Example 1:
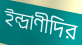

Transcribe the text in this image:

ইন্দ্রাণীদির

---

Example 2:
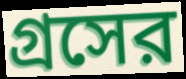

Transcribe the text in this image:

গ্রসের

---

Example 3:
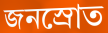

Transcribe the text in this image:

জনস্রোত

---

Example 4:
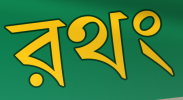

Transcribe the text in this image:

রথং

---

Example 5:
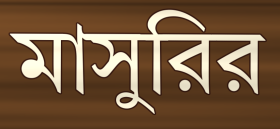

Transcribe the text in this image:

মাসুরির